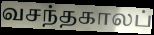
வசந்தகாலப்